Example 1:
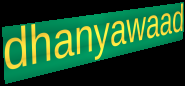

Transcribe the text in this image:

dhanyawaad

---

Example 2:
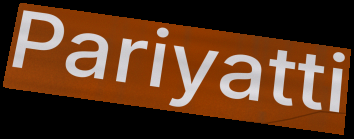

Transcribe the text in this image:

Pariyatti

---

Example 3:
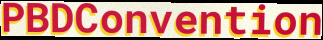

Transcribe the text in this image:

PBDConvention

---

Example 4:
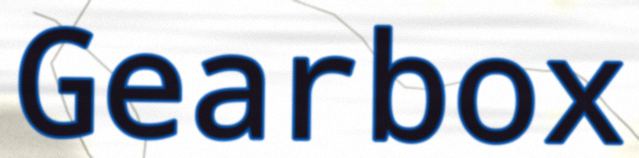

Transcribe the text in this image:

Gearbox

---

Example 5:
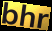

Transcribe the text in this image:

bhr